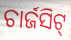
ଚାର୍ଜସିଟ୍